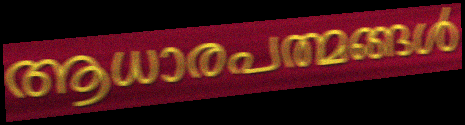
ആധാരപത്മങ്ങൾ